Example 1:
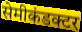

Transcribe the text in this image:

सेमीकंडक्टर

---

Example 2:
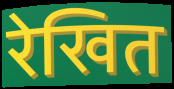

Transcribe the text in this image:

रेखित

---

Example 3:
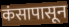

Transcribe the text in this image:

कंसापासून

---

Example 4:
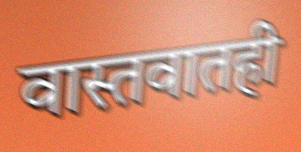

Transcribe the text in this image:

वास्तवातही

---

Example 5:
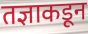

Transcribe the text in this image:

तज्ञाकडून